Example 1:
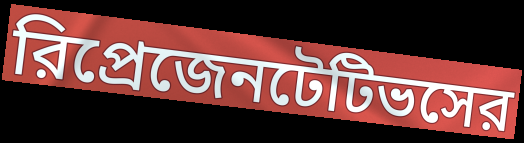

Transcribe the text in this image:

রিপ্রেজেনটেটিভসের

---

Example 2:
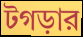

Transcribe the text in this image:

টগড়ার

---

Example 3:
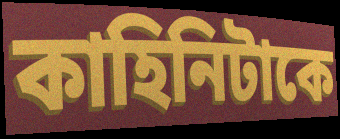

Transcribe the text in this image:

কাহিনিটাকে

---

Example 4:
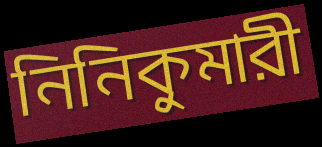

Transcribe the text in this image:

নিনিকুমারী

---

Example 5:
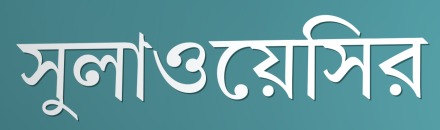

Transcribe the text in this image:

সুলাওয়েসির